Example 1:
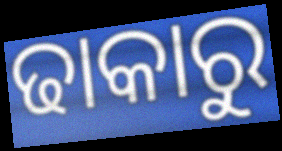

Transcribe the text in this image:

ଢାକାରୁ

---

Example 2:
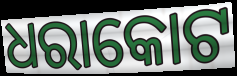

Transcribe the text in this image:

ଧରାକୋଟ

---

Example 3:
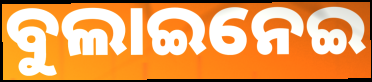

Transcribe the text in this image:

ବୁଲାଇନେଇ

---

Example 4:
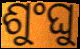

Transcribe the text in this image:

ଶୁଂଘୁ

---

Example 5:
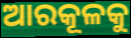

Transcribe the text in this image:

ଆରକୂଳକୁ